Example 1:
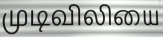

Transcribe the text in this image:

முடிவிலியை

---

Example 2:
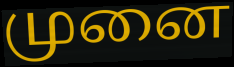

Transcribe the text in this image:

முனை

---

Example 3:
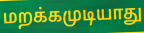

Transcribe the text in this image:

மறக்கமுடியாது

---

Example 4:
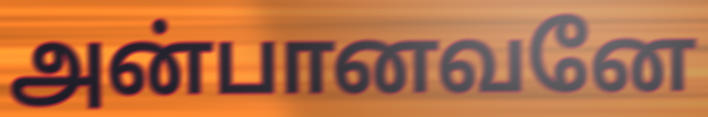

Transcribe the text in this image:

அன்பானவனே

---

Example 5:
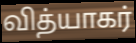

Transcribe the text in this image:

வித்யாகர்